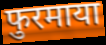
फुरमाया